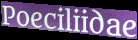
Poeciliidae